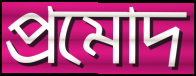
প্ৰমোদ